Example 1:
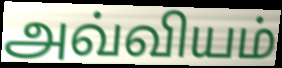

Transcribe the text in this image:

அவ்வியம்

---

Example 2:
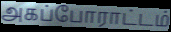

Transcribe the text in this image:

அகப்போராட்டம்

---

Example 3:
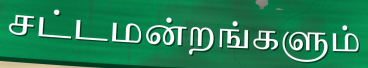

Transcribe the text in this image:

சட்டமன்றங்களும்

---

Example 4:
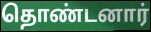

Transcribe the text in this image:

தொண்டனார்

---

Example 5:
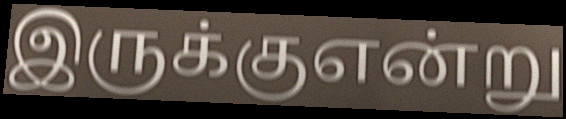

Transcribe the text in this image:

இருக்குஎன்று